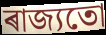
ৰাজ্যতো